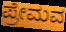
ಪ್ರೇಮವ